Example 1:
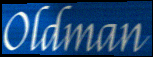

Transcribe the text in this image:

Oldman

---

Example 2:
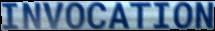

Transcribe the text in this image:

INVOCATION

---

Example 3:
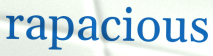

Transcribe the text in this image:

rapacious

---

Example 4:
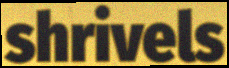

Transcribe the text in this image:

shrivels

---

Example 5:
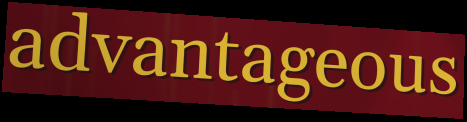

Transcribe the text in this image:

advantageous